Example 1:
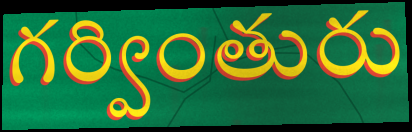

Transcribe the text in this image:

గర్వింతురు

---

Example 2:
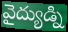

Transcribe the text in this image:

వైద్యుడ్ని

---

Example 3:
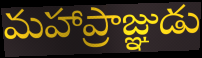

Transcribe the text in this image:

మహాప్రాజ్ఞుడు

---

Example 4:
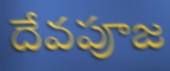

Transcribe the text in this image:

దేవపూజ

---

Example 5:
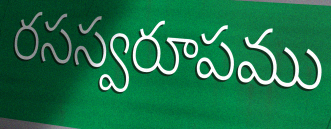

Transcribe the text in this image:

రసస్వరూపము